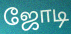
ஜோடி